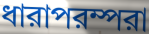
ধারাপরম্পরা